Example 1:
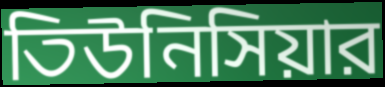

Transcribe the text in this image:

তিউনিসিয়ার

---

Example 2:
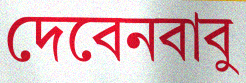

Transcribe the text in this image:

দেবেনবাবু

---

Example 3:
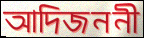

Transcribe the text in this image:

আদিজননী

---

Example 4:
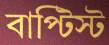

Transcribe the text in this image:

বাপ্টিস্ট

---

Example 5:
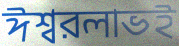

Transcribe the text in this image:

ঈশ্বরলাভই